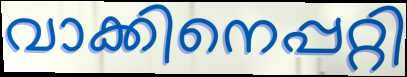
വാക്കിനെപ്പറ്റി